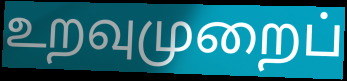
உறவுமுறைப்